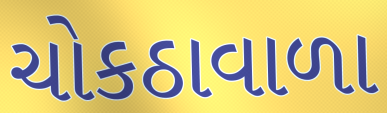
ચોકઠાવાળા